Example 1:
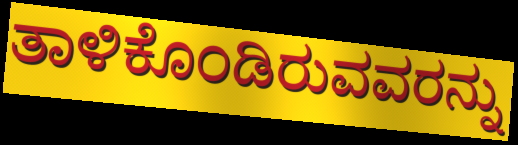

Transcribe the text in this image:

ತಾಳಿಕೊಂಡಿರುವವರನ್ನು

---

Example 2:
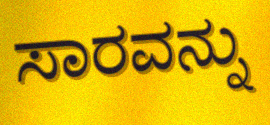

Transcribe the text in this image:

ಸಾರವನ್ನು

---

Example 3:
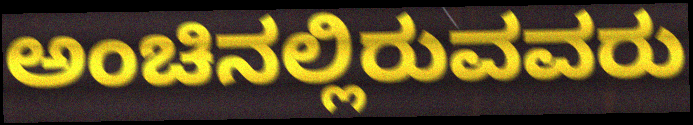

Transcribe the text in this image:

ಅಂಚಿನಲ್ಲಿರುವವರು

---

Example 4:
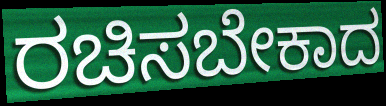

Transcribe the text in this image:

ರಚಿಸಬೇಕಾದ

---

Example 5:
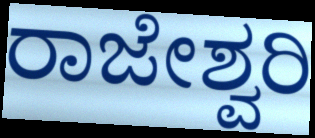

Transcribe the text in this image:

ರಾಜೇಶ್ವರಿ